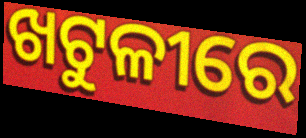
ଖଟୁଳୀରେ